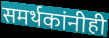
समर्थकांनीही